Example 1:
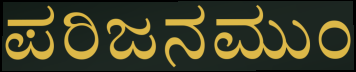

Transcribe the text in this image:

ಪರಿಜನಮುಂ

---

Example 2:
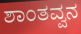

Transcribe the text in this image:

ಶಾಂತವ್ವನ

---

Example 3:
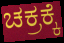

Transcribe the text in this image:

ಚಕ್ರಕ್ಕೆ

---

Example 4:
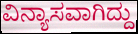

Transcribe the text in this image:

ವಿನ್ಯಾಸವಾಗಿದ್ದು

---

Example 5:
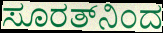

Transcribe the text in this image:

ಸೂರತ್‌ನಿಂದ